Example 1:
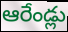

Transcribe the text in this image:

ఆరేండ్లు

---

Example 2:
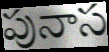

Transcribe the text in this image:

పునాస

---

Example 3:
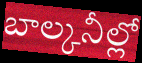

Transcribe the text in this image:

బాల్కనీల్లో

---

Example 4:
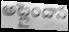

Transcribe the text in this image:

అట్లైందాన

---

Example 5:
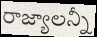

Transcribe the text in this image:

రాజ్యాలన్నీ